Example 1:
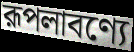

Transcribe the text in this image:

রূপলাবণ্যে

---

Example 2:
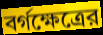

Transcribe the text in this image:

বর্গক্ষেত্রের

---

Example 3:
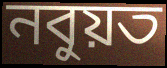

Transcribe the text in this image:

নবুয়ত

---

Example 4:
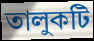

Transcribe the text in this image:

তালুকটি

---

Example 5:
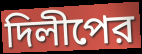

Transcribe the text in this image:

দিলীপের